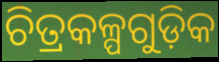
ଚିତ୍ରକଳ୍ପଗୁଡ଼ିକ